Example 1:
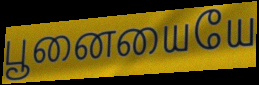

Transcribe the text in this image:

பூனையையே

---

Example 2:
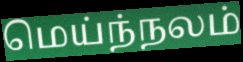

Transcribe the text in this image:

மெய்ந்நலம்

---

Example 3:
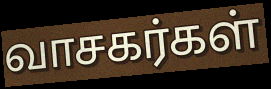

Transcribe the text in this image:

வாசகர்கள்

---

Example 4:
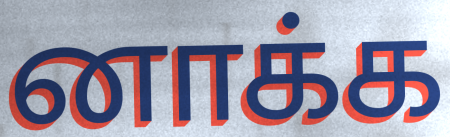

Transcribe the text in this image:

னாக்க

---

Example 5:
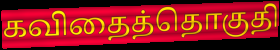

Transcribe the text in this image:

கவிதைத்தொகுதி